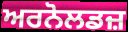
ਅਰਨੋਲਡਜ਼